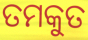
ତମକୁତ